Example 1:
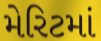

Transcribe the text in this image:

મેરિટમાં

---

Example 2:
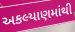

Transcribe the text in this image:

અકલ્યાણમાંથી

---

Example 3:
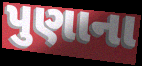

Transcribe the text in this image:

પુણાના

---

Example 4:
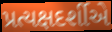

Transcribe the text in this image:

પ્રત્યક્ષદર્શીએ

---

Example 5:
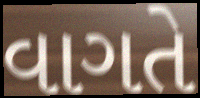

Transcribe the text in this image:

વાગતે